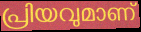
പ്രിയവുമാണ്